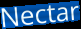
Nectar